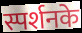
स्पर्शनके